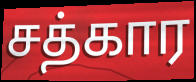
சத்கார